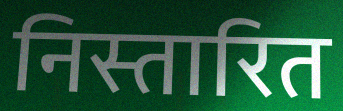
निस्तारित